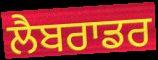
ਲੈਬਰਾਡਰ